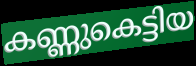
കണ്ണുകെട്ടിയ